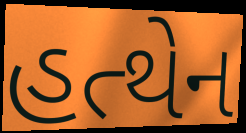
હત્થેન